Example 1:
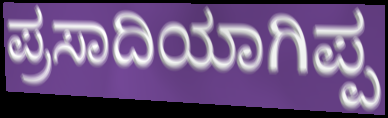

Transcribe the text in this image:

ಪ್ರಸಾದಿಯಾಗಿಪ್ಪ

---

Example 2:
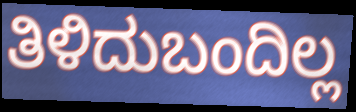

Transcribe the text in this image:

ತಿಳಿದುಬಂದಿಲ್ಲ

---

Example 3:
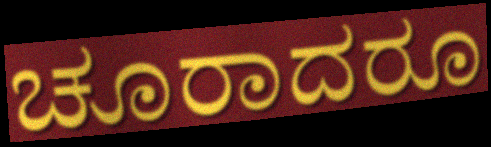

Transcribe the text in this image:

ಚೂರಾದರೂ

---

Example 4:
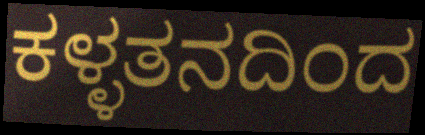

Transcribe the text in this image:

ಕಳ್ಳತನದಿಂದ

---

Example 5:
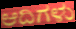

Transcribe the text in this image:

ಆದಿಗಳು